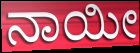
ನಾಯೀ